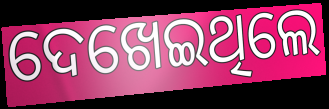
ଦେଖେଇଥିଲେ